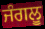
ਜੰਗਲੂ